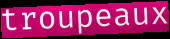
troupeaux